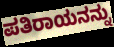
ಪತಿರಾಯನನ್ನು